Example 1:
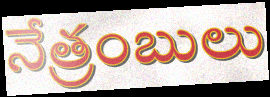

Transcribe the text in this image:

నేత్రంబులు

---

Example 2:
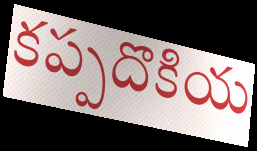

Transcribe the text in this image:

కప్పదొకియ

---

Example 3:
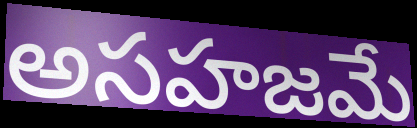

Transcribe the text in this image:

అసహజమే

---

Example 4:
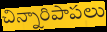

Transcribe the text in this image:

చిన్నారిపాపలు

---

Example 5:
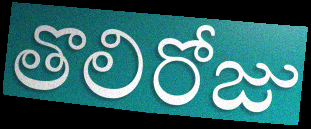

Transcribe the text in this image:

తొలిరోజు